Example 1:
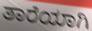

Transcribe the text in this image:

ತಾರೆಯಾಗಿ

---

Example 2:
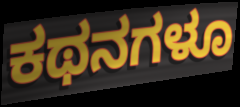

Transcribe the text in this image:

ಕಥನಗಳೂ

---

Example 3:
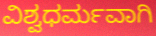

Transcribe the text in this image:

ವಿಶ್ವಧರ್ಮವಾಗಿ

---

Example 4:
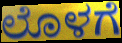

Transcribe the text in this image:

ಲೊಳಗೆ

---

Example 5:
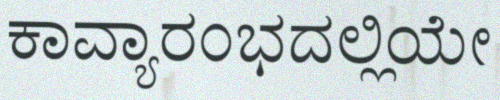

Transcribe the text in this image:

ಕಾವ್ಯಾರಂಭದಲ್ಲಿಯೇ